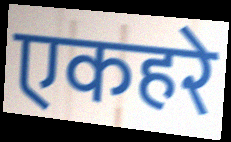
एकहरे